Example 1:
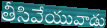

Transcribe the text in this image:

తీసివేయువాడు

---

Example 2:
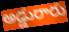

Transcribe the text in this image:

అడ్డురారు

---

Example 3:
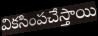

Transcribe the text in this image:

వికసింపచేస్తాయి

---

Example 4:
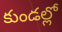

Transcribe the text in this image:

కుండల్లో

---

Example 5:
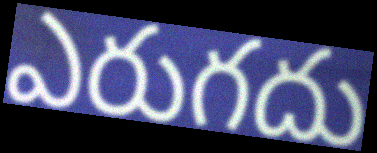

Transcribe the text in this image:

ఎరుగదు